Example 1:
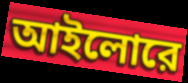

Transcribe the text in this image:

আইলোরে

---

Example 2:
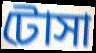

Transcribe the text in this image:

টোসা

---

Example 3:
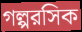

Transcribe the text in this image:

গল্পরসিক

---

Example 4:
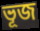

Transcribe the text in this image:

ভূজ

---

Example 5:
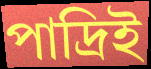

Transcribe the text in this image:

পাদ্রিই